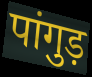
पांगुड़